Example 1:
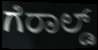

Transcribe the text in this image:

ಗೆರಾಲ್ಡ್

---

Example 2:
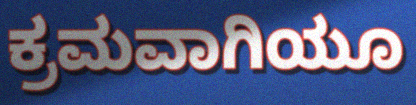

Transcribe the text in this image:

ಕ್ರಮವಾಗಿಯೂ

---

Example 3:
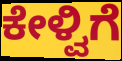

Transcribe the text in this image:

ಕೇಳ್ವಿಗೆ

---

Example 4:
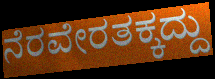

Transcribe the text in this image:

ನೆರವೇರತಕ್ಕದ್ದು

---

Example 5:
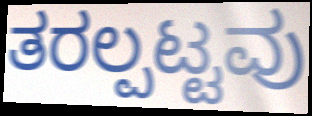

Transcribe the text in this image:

ತರಲ್ಪಟ್ಟವು